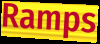
Ramps